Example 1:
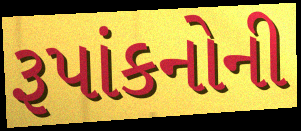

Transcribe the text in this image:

રૂપાંકનોની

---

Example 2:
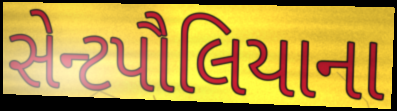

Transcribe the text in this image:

સેન્ટપૌલિયાના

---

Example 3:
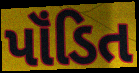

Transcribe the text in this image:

પૉંડિત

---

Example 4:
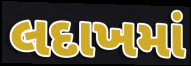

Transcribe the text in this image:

લદાખમાં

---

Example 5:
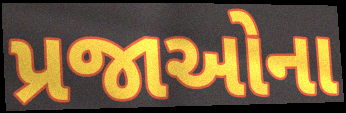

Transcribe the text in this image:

પ્રજાઓના